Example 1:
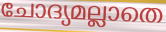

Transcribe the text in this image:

ചോദ്യമല്ലാതെ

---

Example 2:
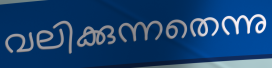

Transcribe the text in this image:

വലിക്കുന്നതെന്നു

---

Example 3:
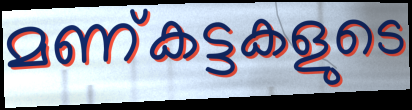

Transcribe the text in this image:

മണ്കട്ടകളുടെ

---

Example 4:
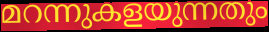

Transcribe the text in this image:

മറന്നുകളയുന്നതും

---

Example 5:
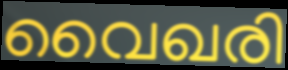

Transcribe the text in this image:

വൈഖരി